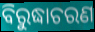
ବିରୁଦ୍ଧାଚରଣ